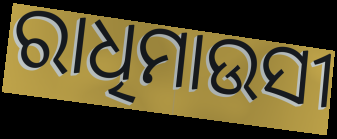
ରାଧିମାଉସୀ